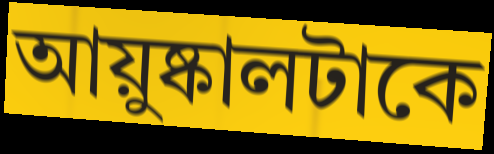
আয়ুষ্কালটাকে